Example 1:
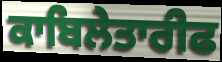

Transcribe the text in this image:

ਕਾਬਿਲੇਤਾਰੀਫ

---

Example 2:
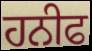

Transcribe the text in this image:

ਹਨੀਫ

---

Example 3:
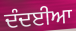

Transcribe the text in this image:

ਦੰਦਈਆ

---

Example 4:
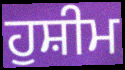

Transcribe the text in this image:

ਹੁਸ਼ੀਮ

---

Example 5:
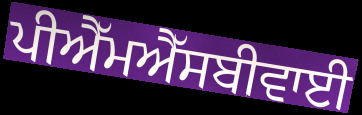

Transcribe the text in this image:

ਪੀਐੱਮਐੱਸਬੀਵਾਈ